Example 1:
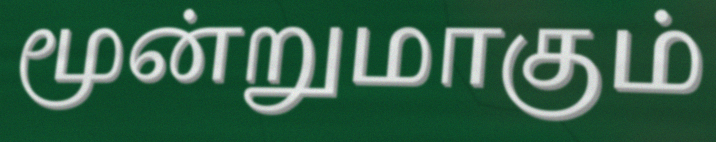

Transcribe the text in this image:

மூன்றுமாகும்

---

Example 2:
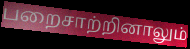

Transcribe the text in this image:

பறைசாற்றினாலும்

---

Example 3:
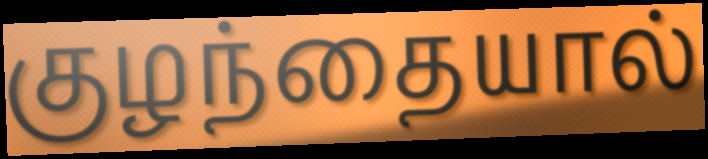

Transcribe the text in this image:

குழந்தையால்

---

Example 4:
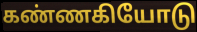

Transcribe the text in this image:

கண்ணகியோடு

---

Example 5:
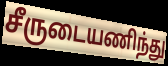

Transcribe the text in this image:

சீருடையணிந்து